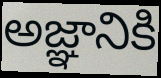
అజ్ఞానికి